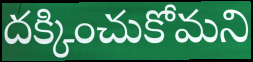
దక్కించుకోమని